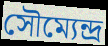
সৌম্যেন্দ্র